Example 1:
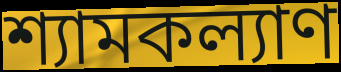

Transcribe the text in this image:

শ্যামকল্যাণ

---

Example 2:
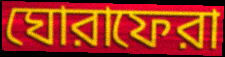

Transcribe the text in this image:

ঘোরাফেরা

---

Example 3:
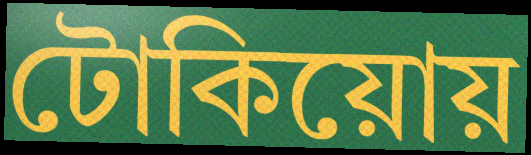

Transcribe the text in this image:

টোকিয়োয়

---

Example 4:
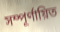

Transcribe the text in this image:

সম্পূর্ণায়িত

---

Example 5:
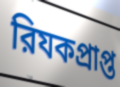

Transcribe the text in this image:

রিযকপ্রাপ্ত